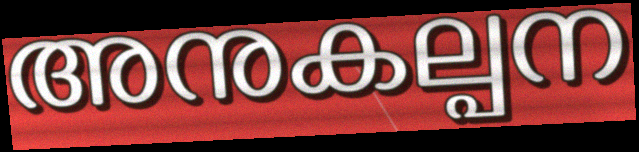
അനുകല്പന